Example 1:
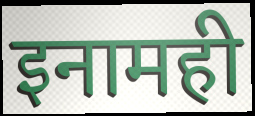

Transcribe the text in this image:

इनामही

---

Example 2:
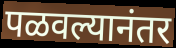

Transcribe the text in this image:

पळवल्यानंतर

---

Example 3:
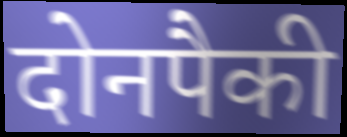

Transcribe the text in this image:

दोनपैकी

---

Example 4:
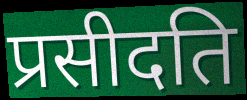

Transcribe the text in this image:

प्रसीदति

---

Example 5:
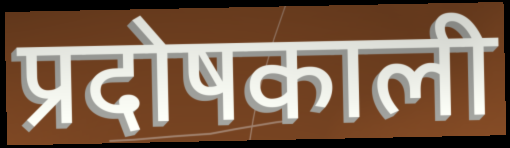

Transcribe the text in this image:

प्रदोषकाली